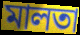
মালতা